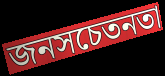
জনসচেতনতা